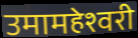
उमामहेश्वरी